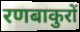
रणबाकुरों